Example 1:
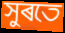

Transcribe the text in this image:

সুৰতে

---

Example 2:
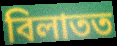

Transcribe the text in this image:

বিলাতত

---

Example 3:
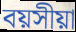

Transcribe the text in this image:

বয়সীয়া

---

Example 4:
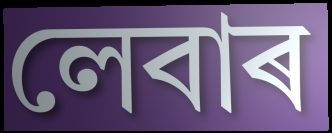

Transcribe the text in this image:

লেবাৰ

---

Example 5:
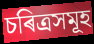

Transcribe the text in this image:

চৰিত্ৰসমূহ